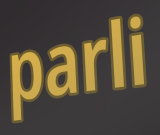
parli